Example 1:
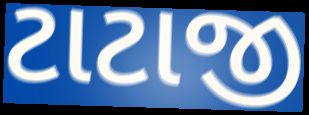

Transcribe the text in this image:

ટાટાજી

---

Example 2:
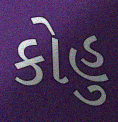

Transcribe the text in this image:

કોહુ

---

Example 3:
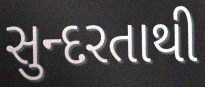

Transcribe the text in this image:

સુન્દરતાથી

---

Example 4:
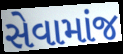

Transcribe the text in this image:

સેવામાંજ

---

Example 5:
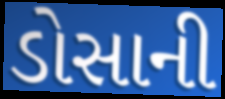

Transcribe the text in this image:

ડોસાની